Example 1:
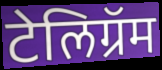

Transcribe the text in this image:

टेलिग्रॅम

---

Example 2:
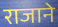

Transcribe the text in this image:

राजाने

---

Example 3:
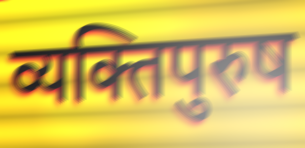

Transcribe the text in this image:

व्यक्तिपुरुष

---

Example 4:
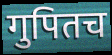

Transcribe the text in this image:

गुपितच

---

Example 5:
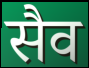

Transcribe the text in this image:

सैव